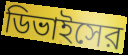
ডিভাইসের